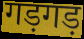
गड़गड़